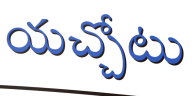
యచ్చోటు